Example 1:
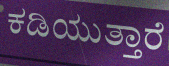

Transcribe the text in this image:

ಕಡಿಯುತ್ತಾರೆ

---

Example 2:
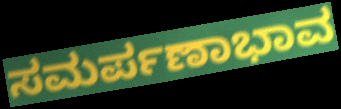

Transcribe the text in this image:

ಸಮರ್ಪಣಾಭಾವ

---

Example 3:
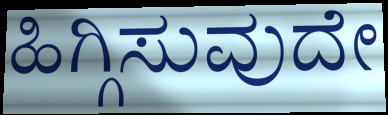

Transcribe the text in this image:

ಹಿಗ್ಗಿಸುವುದೇ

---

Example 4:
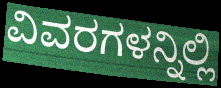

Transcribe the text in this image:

ವಿವರಗಳನ್ನಿಲ್ಲಿ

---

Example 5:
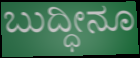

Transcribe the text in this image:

ಬುದ್ಧೀನೂ